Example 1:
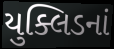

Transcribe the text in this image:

યુક્લિડનાં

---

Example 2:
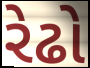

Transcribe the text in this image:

રેઢો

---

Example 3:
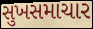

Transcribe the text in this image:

સુખસમાચાર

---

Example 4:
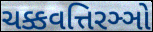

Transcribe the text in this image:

ચક્કવત્તિરઞ્ઞો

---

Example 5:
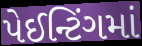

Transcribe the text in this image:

પેઈન્ટિંગમાં